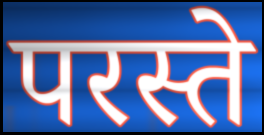
परस्ते